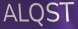
ALQST